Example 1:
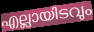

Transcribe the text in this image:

എല്ലായിടവും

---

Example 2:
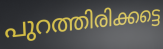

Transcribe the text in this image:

പുറത്തിരിക്കട്ടെ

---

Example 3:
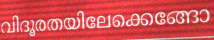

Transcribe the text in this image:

വിദൂരതയിലേക്കെങ്ങോ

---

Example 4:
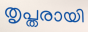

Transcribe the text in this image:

തൃപ്തരായി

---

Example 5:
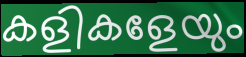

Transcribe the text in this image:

കളികളേയും